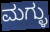
ಮಗ್ಳು